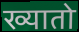
ख्यातो